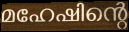
മഹേഷിന്റെ